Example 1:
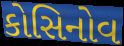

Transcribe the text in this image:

કોસિનોવ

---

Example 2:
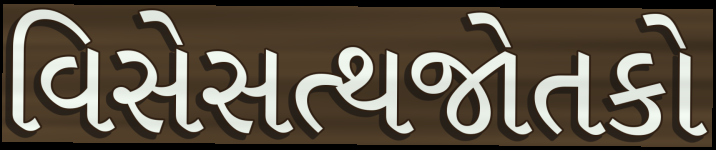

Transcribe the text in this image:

વિસેસત્થજોતકો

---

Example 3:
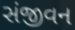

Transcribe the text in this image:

સંજીવન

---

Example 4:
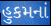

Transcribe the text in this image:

હુકમનાં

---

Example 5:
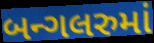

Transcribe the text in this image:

બન્ગલરુમાં